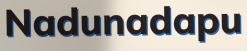
Nadunadapu